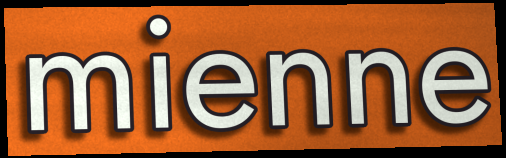
mienne